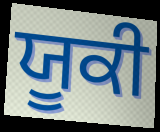
ਯੂਕੀ